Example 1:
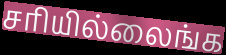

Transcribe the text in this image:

சரியில்லைங்க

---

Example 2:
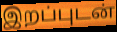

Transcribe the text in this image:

இறப்புடன்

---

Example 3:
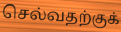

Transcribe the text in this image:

செல்வதற்குக்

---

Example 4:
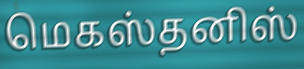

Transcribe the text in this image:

மெகஸ்தனிஸ்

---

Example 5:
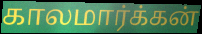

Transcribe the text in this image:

காலமார்க்கன்